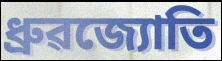
ধ্ৰুৱজ্যোতি